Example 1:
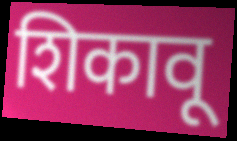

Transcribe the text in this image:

शिकावू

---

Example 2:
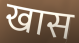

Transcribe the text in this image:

खास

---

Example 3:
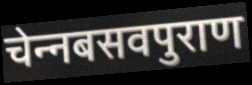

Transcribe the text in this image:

चेन्नबसवपुराण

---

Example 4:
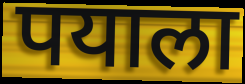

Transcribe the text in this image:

पयाला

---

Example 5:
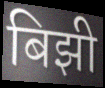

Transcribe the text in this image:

बिझी